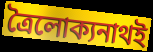
ত্রৈলোক্যনাথই